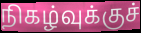
நிகழ்வுக்குச்